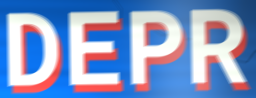
DEPR